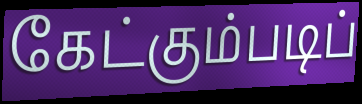
கேட்கும்படிப்